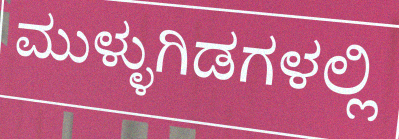
ಮುಳ್ಳುಗಿಡಗಳಲ್ಲಿ